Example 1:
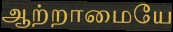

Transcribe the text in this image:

ஆற்றாமையே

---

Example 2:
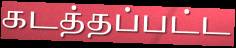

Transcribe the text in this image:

கடத்தப்பட்ட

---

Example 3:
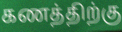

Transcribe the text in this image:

கணத்திற்கு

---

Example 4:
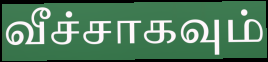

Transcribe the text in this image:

வீச்சாகவும்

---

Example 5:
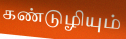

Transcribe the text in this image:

கண்டுழியும்